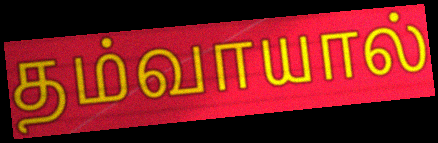
தம்வாயால்